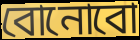
বোনোবো